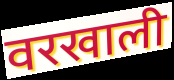
वरखाली